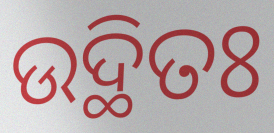
ଉଦ୍ଥିତଃ